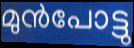
മുൻപോട്ടു